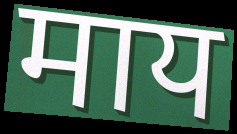
माय